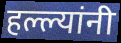
हल्ल्यांनी